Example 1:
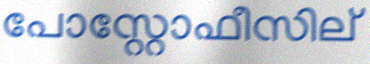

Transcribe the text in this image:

പോസ്റ്റോഫീസില്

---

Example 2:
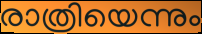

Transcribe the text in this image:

രാത്രിയെന്നും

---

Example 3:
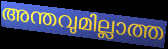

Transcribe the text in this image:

അന്തവുമില്ലാത്ത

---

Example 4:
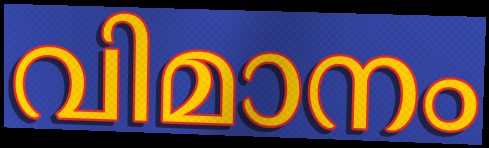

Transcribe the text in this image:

വിമാനം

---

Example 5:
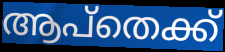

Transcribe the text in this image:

ആപ്തെക്ക്